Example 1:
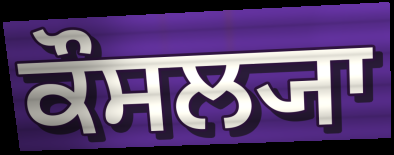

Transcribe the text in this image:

ਕੌਸਲ੍ਯਾ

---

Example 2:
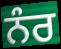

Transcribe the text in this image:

ਨੰਰ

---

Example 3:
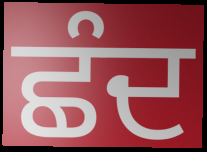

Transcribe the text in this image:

ਛੰਦ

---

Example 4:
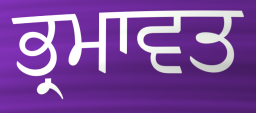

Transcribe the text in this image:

ਭ੍ਰਮਾਵਤ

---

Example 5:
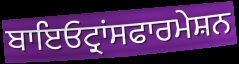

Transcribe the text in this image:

ਬਾਇਓਟ੍ਰਾਂਸਫਾਰਮੇਸ਼ਨ